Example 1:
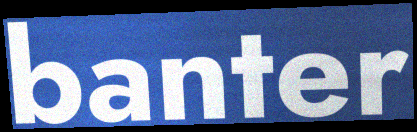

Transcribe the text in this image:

banter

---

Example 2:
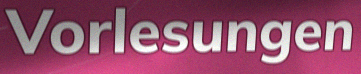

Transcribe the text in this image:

Vorlesungen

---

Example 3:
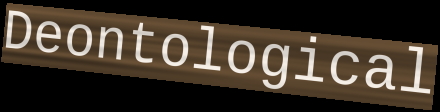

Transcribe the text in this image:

Deontological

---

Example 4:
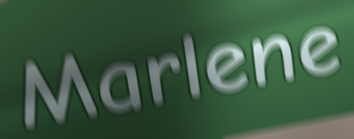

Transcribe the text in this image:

Marlene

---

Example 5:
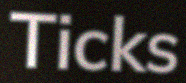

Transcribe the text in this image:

Ticks